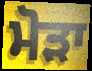
ਮੋੜਾ